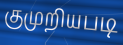
குமுறியபடி